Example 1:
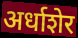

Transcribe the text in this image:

अर्धाशेर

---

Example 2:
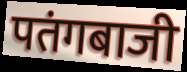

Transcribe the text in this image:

पतंगबाजी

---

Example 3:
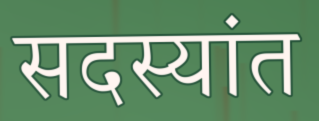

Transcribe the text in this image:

सदस्यांत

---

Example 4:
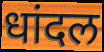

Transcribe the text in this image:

धांदल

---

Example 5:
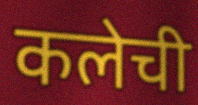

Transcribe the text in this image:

कलेची